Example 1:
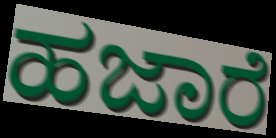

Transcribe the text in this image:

ಹಜಾರೆ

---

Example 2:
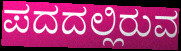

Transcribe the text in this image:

ಪದದಲ್ಲಿರುವ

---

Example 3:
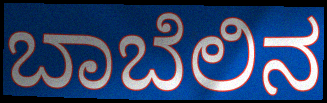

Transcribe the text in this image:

ಬಾಬೆಲಿನ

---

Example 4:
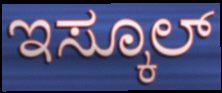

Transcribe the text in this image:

ಇಸ್ಕೂಲ್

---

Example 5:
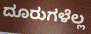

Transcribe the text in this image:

ದೂರುಗಳೆಲ್ಲ